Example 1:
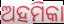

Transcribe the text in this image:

ଅହମିକା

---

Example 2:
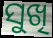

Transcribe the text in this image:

ସୁଖି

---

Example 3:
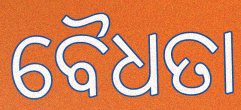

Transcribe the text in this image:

ବୈଧତା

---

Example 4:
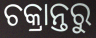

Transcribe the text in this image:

ଚକ୍ରାନ୍ତରୁ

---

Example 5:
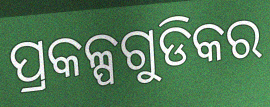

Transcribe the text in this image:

ପ୍ରକଳ୍ପଗୁଡିକର